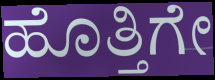
ಹೊತ್ತಿಗೇ